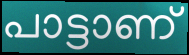
പാട്ടാണ്